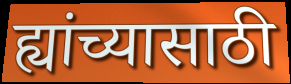
ह्यांच्यासाठी